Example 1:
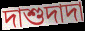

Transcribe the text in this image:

দাশুদাদা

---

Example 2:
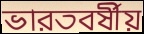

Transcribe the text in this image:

ভারতবর্ষীয়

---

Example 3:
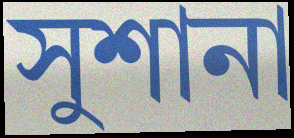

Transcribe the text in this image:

সুশানা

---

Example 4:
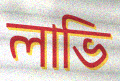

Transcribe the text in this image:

লাভি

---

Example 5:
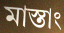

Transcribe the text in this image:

মাস্তাং